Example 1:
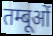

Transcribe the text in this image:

तम्बूओं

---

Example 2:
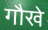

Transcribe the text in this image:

गौखे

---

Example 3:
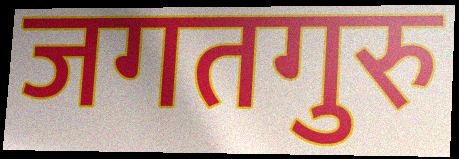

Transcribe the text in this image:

जगतगुरु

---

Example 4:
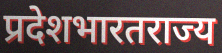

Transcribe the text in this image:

प्रदेशभारतराज्य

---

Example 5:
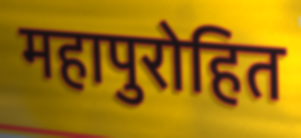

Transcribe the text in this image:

महापुरोहित